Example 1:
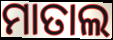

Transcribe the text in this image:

ମାତାଲ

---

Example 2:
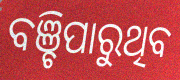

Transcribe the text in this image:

ବଞ୍ଚିପାରୁଥିବ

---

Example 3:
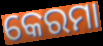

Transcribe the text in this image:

କେରମା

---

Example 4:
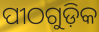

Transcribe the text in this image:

ପୀଠଗୁଡ଼ିକ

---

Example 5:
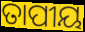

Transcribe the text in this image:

ତାପୀୟ